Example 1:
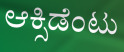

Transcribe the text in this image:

ಆಕ್ಸಿಡೆಂಟು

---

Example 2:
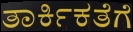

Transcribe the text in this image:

ತಾರ್ಕಿಕತೆಗೆ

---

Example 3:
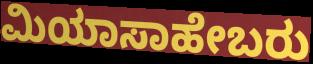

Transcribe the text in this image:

ಮಿಯಾಸಾಹೇಬರು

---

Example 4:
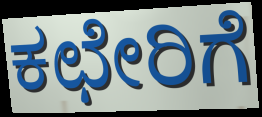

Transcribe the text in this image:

ಕಛೇರಿಗೆ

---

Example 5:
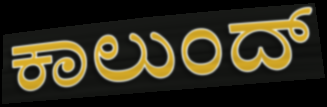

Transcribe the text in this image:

ಕಾಲುಂದ್